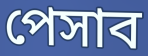
পেসাব